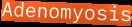
Adenomyosis